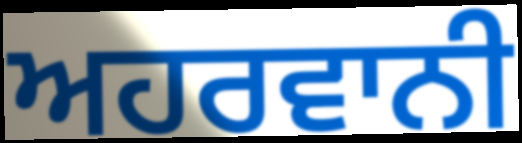
ਅਹਰਵਾਨੀ